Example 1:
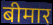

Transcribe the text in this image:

बीमार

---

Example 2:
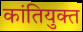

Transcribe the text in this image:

कांतियुक्त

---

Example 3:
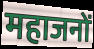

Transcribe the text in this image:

महाजनों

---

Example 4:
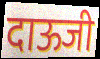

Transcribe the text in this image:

दाऊजी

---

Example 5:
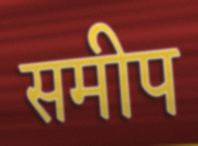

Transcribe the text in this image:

समीप